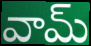
వామ్